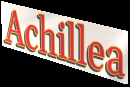
Achillea